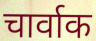
चार्वाक